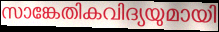
സാങ്കേതികവിദ്യയുമായി